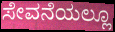
ಸೇವನೆಯಲ್ಲೂ